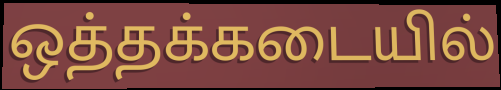
ஒத்தக்கடையில்